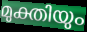
മുക്തിയും